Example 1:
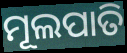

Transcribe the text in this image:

ମୂଲପାତି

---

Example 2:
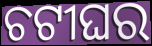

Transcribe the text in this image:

ଚଟୀଘର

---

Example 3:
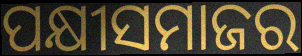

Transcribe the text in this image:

ପକ୍ଷୀସମାଜର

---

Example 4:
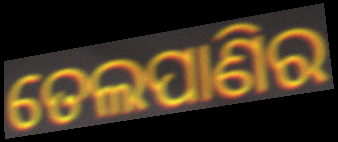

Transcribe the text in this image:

ତେଲପାଣିର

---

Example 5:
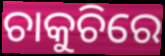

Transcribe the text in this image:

ଚାକୁଚିରେ